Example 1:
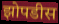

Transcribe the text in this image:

झोपडीस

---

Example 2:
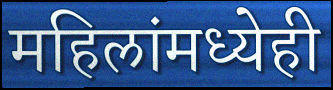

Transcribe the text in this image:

महिलांमध्येही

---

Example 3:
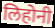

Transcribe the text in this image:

लिहोनी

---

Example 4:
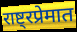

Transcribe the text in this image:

राष्ट्रप्रेमात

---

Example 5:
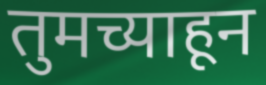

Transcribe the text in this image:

तुमच्याहून